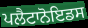
ਪਲੈਟਾਨੋਇਡਸ